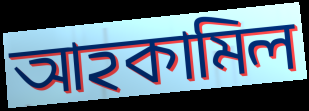
আহকামিল